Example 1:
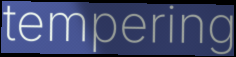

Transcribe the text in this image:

tempering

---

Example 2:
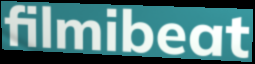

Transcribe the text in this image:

filmibeat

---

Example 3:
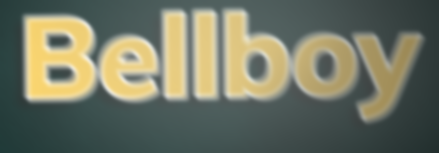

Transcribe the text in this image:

Bellboy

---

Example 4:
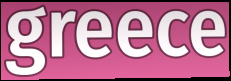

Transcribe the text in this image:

greece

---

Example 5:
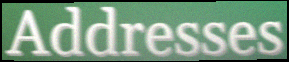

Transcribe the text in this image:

Addresses